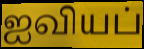
ஐவியப்